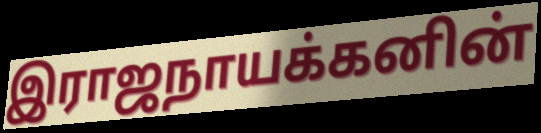
இராஜநாயக்கனின்